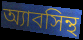
অ্যাবসিন্থ